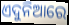
ଏଦୁନିଆରେ